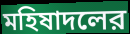
মহিষাদলের